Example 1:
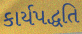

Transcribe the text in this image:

કાર્યપદ્ધતિ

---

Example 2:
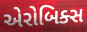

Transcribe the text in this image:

એરોબિક્સ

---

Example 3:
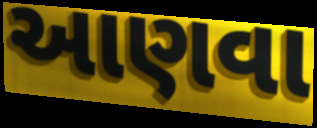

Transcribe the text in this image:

આણવા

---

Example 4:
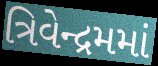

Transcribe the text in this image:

ત્રિવેન્દ્રમમાં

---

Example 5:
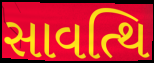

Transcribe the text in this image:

સાવત્થિ